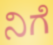
ನಿಗೆ